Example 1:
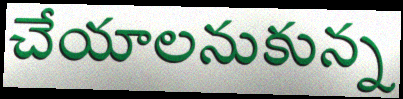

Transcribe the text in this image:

చేయాలనుకున్న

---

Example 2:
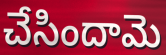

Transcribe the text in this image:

చేసిందామె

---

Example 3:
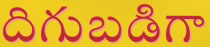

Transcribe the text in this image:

దిగుబడిగా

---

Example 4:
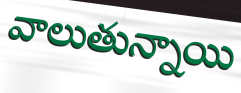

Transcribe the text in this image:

వాలుతున్నాయి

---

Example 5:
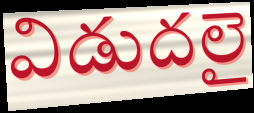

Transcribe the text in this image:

విడుదలై